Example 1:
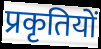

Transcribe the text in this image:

प्रकृतियों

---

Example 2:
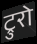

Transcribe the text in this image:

ट्रुरो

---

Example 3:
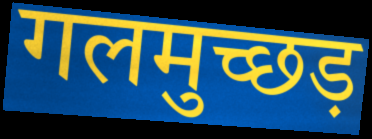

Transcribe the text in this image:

गलमुच्छड़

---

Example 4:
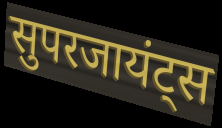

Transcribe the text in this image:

सुपरजायंट्स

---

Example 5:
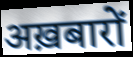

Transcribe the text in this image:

अख़बारों